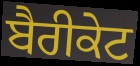
ਬੈਰੀਕੇਟ